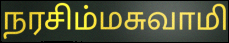
நரசிம்மசுவாமி